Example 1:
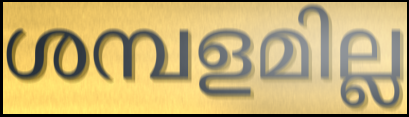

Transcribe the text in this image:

ശമ്പളമില്ല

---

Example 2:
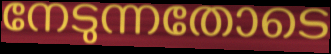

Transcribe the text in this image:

നേടുന്നതോടെ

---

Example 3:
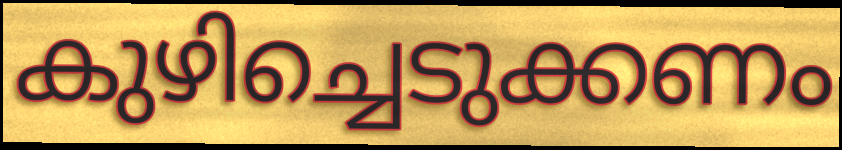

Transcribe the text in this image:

കുഴിച്ചെടുക്കണം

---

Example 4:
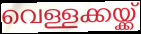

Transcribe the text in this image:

വെള്ളക്കയ്ക്ക്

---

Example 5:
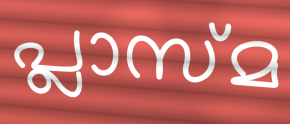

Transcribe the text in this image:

പ്ലാസ്മ